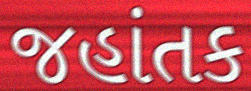
જહાંતક